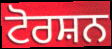
ਟੋਰਸ਼ਨ